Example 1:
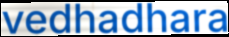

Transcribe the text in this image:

vedhadhara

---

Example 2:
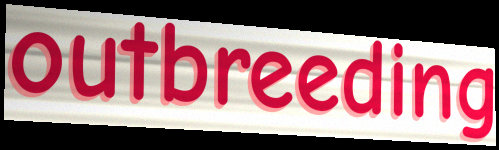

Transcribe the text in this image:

outbreeding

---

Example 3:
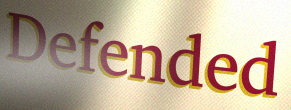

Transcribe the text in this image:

Defended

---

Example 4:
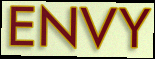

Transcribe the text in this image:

ENVY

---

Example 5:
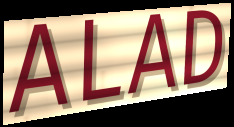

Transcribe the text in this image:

ALAD